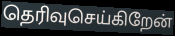
தெரிவுசெய்கிறேன்